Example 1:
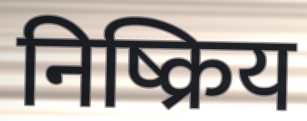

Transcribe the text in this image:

निष्क्रिय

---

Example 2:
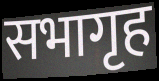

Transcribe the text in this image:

सभागृह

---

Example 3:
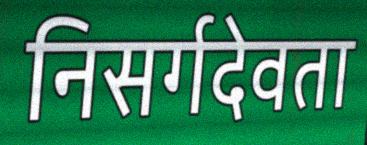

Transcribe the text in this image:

निसर्गदेवता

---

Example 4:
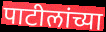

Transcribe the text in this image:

पाटीलांच्या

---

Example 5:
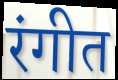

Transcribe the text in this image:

रंगीत